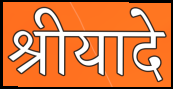
श्रीयादे